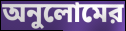
অনুলোমের